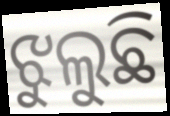
ଝୁଲୁଛି